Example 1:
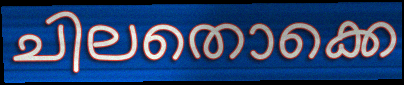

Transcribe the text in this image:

ചിലതൊക്കെ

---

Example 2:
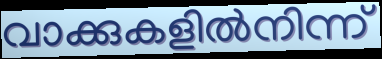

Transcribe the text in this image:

വാക്കുകളിൽനിന്ന്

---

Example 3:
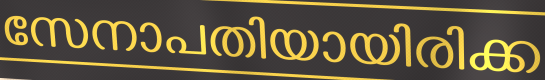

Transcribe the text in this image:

സേനാപതിയായിരിക്ക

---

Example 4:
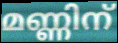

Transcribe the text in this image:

മണ്ണിന്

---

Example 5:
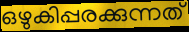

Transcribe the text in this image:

ഒഴുകിപ്പരക്കുന്നത്